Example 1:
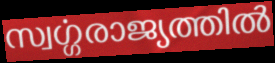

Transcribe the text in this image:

സ്വൎഗ്ഗരാജ്യത്തിൽ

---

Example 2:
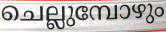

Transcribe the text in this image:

ചെല്ലുമ്പോഴും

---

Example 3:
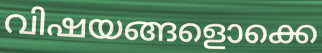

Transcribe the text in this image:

വിഷയങ്ങളൊക്കെ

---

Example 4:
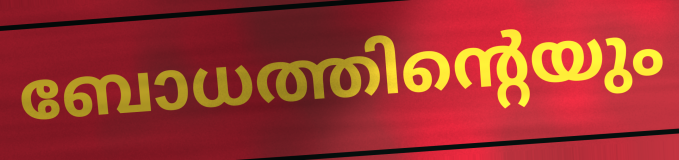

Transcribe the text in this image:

ബോധത്തിന്റെയും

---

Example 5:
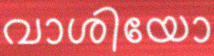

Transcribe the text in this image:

വാശിയോ